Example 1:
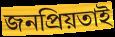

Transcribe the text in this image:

জনপ্রিয়তাই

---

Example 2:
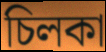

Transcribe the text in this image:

চিলকা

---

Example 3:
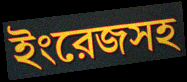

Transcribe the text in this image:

ইংরেজসহ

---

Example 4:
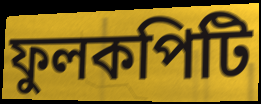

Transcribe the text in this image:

ফুলকপিটি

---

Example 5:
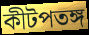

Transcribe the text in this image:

কীটপতঙ্গ